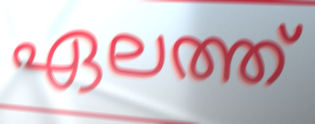
ഏലത്ത്